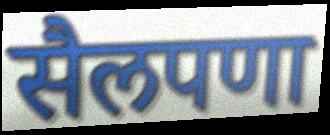
सैलपणा